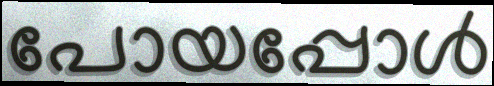
പോയപ്പോൾ